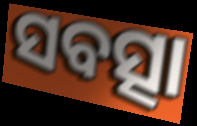
ସବତ୍ସା